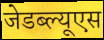
जेडब्ल्यूएस